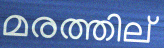
മരത്തില്